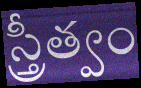
స్త్రీత్వం